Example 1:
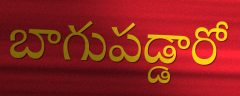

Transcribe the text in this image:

బాగుపడ్డారో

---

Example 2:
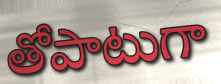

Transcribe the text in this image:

తోపాటుగా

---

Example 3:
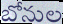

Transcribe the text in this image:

బోనుల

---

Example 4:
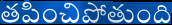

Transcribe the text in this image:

తపించిపోతుంది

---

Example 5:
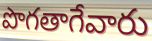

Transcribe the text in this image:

పొగతాగేవారు